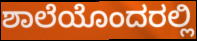
ಶಾಲೆಯೊಂದರಲ್ಲಿ